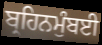
ਬ੍ਰਹਿਨਮੁੰਬਈ